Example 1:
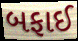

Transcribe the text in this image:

બફાઈ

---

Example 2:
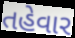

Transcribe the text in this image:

તહેવાર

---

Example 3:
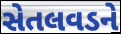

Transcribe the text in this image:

સેતલવડને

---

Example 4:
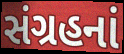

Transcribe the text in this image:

સંગ્રહનાં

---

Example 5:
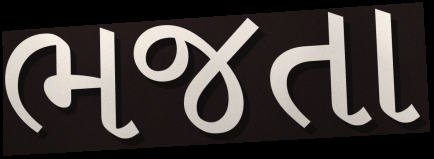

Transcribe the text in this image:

ભજતા